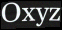
Oxyz